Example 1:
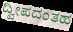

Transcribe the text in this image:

ದ್ವೀಪದಂತಹ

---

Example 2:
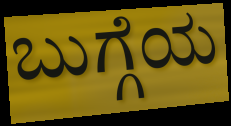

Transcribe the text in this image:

ಬುಗ್ಗೆಯ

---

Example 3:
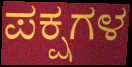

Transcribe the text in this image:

ಪಕ್ಷಗಳ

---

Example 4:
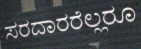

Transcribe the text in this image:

ಸರದಾರರೆಲ್ಲರೂ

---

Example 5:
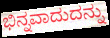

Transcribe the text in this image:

ಭಿನ್ನವಾದುದನ್ನು